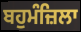
ਬਹੁਮੰਜ਼ਿਲਾ